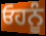
ਓਹਨੂੰ